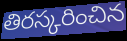
తిరస్కరించిన